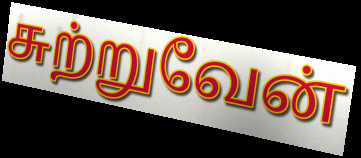
சுற்றுவேன்